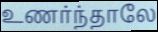
உணர்ந்தாலே